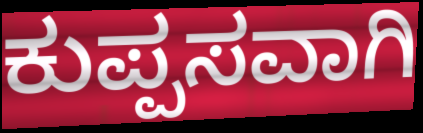
ಕುಪ್ಪಸವಾಗಿ